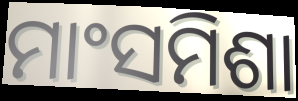
ମାଂସମିଶା